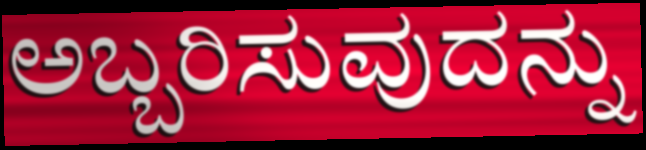
ಅಬ್ಬರಿಸುವುದನ್ನು